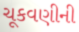
ચૂકવણીની